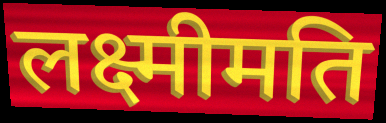
लक्ष्मीमति